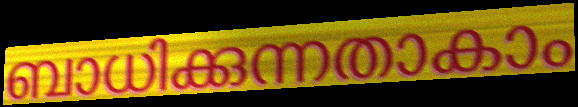
ബാധിക്കുന്നതാകാം